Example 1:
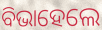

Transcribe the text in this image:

ବିଭାହେଲେ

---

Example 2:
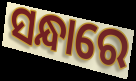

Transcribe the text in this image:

ସନ୍ଧାରେ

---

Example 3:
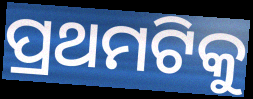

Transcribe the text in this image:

ପ୍ରଥମଟିକୁ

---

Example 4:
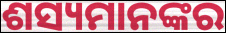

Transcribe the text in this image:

ଶସ୍ୟମାନଙ୍କର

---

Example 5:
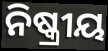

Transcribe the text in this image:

ନିଷ୍କ୍ରୀୟ